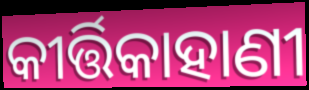
କୀର୍ତ୍ତିକାହାଣୀ